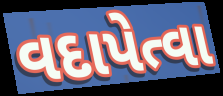
વદાપેત્વા